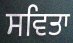
ਸਵਿਤਾ